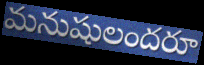
మనుషులందరూ